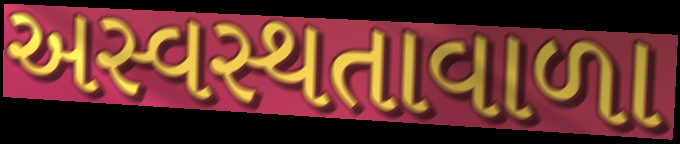
અસ્વસ્થતાવાળા